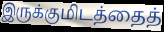
இருக்குமிடத்தைத்